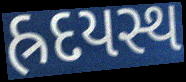
હ્રદયસ્થ